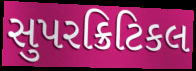
સુપરક્રિટિકલ